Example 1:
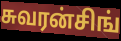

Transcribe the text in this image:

சுவரன்சிங்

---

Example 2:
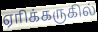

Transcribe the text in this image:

ஏரிக்கருகில்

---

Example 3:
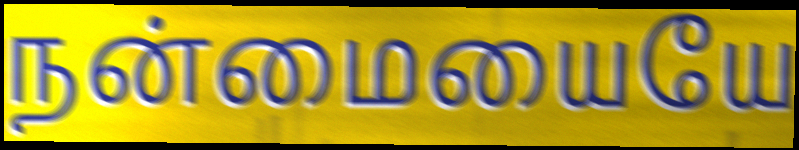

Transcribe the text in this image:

நன்மையையே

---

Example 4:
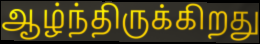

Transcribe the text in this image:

ஆழ்ந்திருக்கிறது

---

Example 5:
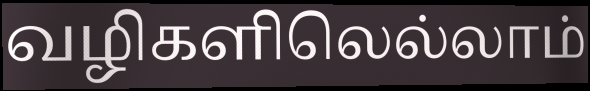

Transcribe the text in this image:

வழிகளிலெல்லாம்